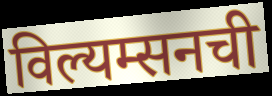
विल्यम्सनची